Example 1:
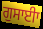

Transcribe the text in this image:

ਗੁਸਾਈਾ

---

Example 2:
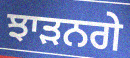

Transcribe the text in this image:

ਝਾੜਨਗੇ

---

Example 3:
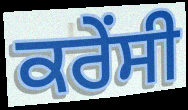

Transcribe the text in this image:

ਕਰੇੰਸੀ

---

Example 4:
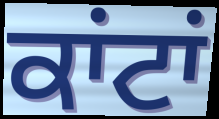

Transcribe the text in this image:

ਕਾਂਟਾਂ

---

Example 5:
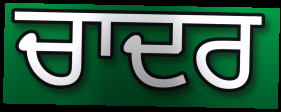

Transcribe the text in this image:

ਚਾਦਰ